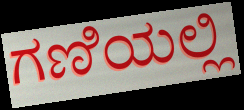
ಗಣಿಯಲ್ಲಿ